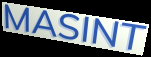
MASINT